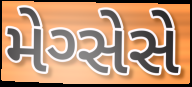
મેગ્સેસે